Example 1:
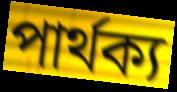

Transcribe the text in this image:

পাৰ্থক্য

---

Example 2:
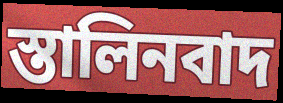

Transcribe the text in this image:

স্তালিনবাদ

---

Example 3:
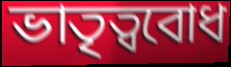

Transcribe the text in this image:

ভাতৃত্ববোধ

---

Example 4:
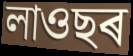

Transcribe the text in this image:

লাওছৰ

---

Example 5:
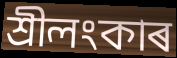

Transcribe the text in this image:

শ্ৰীলংকাৰ